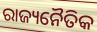
ରାଜ୍ୟନୈତିକ